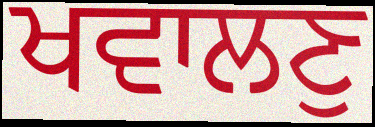
ਖਵਾਲਣੁ